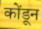
कोंडून